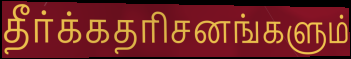
தீர்க்கதரிசனங்களும்